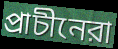
প্রাচীনেরা